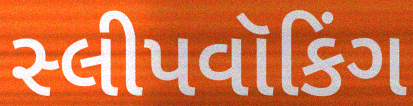
સ્લીપવૉકિંગ